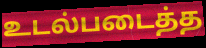
உடல்படைத்த